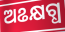
ଅଌକ୍ଷଗ୍ଧ